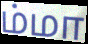
ம்மா